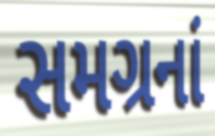
સમગ્રનાં